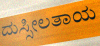
ದುಸ್ಸೀಲತಾಯ